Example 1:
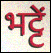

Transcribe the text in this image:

भट्टें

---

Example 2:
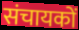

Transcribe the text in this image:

संचायकों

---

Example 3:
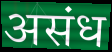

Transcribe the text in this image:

असंध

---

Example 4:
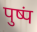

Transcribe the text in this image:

पुष्पं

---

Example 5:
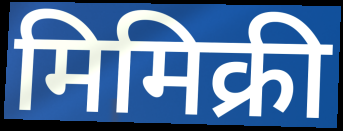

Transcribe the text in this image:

मिमिक्री